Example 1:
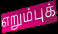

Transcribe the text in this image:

எறும்புக்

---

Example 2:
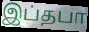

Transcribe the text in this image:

இப்தபா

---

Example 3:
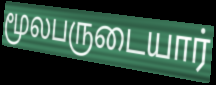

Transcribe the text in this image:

மூலபருடையார்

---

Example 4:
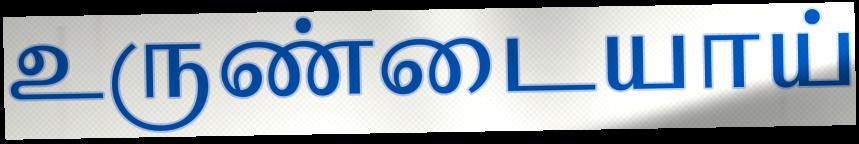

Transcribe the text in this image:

உருண்டையாய்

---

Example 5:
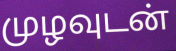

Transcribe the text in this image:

முழவுடன்